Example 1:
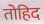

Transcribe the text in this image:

तोहिद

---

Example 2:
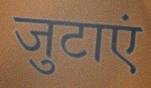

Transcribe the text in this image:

जुटाएं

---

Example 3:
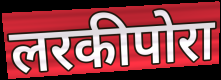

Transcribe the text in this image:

लरकीपोरा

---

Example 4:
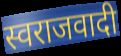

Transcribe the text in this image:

स्वराजवादी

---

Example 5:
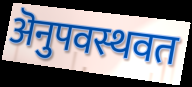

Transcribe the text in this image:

ऄनुपवस्थवत